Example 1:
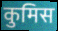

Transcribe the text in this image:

कुमिस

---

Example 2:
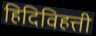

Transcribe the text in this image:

हिदिविहत्ती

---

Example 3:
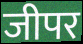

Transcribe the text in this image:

जीपर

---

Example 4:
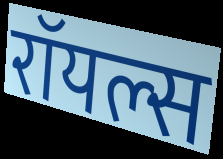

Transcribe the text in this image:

रॉयल्‍स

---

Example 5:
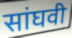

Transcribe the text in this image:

सांघवी